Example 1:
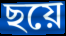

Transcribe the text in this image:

ছয়ে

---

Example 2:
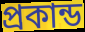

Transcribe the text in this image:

প্রকান্ড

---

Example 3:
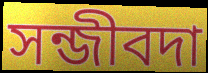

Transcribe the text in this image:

সন্জীবদা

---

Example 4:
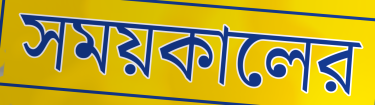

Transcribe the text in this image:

সময়কালের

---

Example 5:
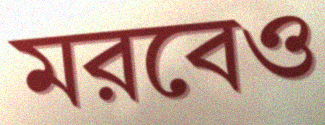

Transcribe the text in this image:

মরবেও